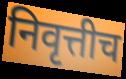
निवृत्तीच